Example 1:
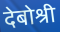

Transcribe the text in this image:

देबोश्री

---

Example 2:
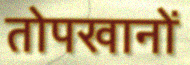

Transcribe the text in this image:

तोपखानों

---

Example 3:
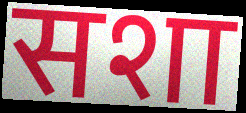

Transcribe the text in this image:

सशा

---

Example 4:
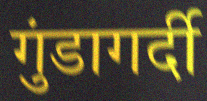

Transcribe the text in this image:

गुंडागर्दी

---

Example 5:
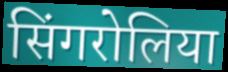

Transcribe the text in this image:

सिंगरोलिया